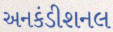
અનકંડીશનલ